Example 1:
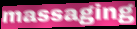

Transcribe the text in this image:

massaging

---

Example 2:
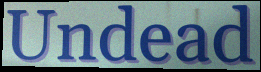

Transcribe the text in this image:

Undead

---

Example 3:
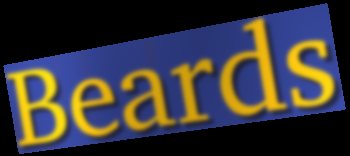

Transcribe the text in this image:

Beards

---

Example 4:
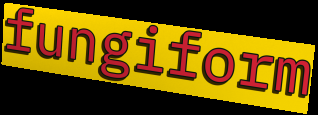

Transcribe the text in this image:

fungiform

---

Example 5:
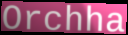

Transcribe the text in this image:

Orchha